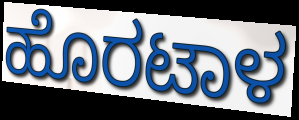
ಹೊರಟಾಳ